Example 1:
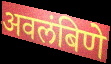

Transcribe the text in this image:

अवलंबिणे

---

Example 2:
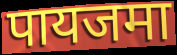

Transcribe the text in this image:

पायजमा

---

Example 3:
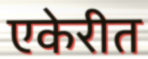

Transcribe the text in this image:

एकेरीत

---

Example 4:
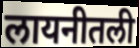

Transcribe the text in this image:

लायनीतली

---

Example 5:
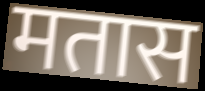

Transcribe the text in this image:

मतास